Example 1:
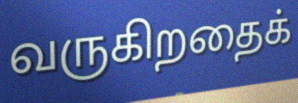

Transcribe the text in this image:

வருகிறதைக்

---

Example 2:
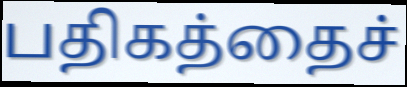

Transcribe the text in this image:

பதிகத்தைச்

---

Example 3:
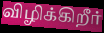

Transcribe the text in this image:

விழிக்கிறீர்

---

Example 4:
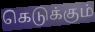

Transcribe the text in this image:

கெடுக்கும்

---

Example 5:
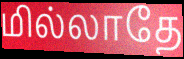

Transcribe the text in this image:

மில்லாதே